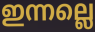
ഇന്നല്ലെ